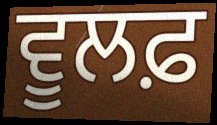
ਵੂਲਫ਼